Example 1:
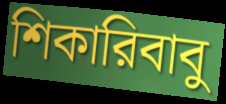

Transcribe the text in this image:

শিকারিবাবু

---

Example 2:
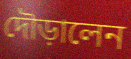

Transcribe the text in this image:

দৌড়ালেন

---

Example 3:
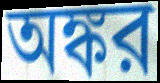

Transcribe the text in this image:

অঙ্কর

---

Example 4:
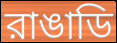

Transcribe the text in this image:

রাঙাডি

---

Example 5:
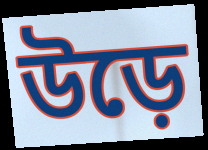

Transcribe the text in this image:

উড়ে